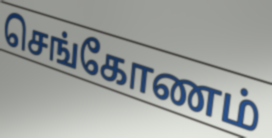
செங்கோணம்